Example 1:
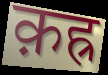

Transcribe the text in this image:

क़ह्र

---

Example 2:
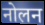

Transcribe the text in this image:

नोलन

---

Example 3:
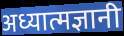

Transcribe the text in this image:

अध्यात्मज्ञानी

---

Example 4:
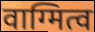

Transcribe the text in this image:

वाग्मित्व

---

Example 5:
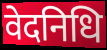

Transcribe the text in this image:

वेदनिधि